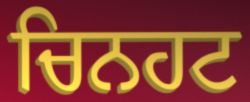
ਚਿਨਹਟ